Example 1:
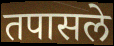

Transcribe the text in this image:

तपासले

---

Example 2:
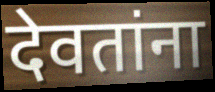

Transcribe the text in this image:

देवतांना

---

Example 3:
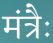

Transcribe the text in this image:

मंत्रैः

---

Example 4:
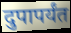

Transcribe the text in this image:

दुपापर्यंत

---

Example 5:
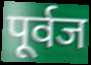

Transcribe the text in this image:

पूर्वज